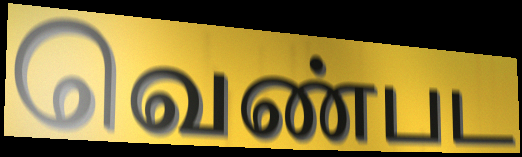
வெண்பட